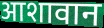
आशावान